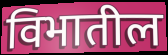
विभातील